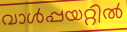
വാൾപ്പയറ്റിൽ